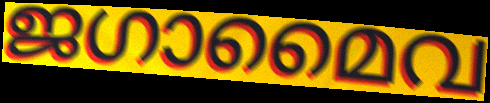
ജഗാമൈവ